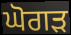
ਘੋਗੜ